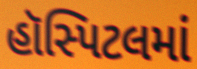
હૉસ્પિટલમાં